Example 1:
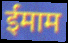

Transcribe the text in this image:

ईमाम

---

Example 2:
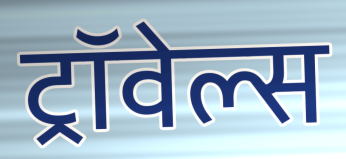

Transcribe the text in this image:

ट्रॉवेल्स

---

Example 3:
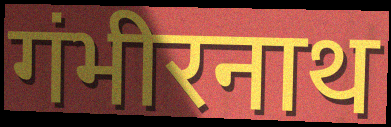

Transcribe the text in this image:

गंभीरनाथ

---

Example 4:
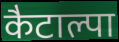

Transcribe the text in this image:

कैटाल्पा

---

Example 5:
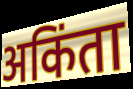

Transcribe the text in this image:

अकिंता